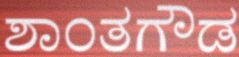
ಶಾಂತಗೌಡ